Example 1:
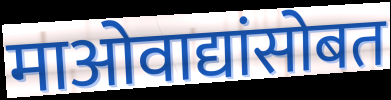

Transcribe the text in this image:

माओवाद्यांसोबत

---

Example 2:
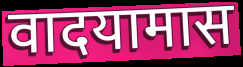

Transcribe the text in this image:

वादयामास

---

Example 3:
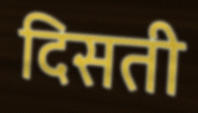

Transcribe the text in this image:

दिसती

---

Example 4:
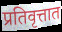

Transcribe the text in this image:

प्रतिवृत्तात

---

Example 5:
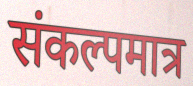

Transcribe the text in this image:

संकल्पमात्र